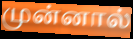
முன்னால்